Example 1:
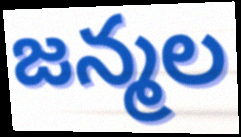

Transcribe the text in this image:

జన్మల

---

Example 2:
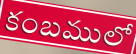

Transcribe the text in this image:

కంబములో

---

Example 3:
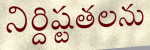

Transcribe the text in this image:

నిర్దిష్టతలను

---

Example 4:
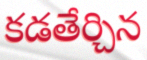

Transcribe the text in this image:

కడతేర్చిన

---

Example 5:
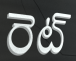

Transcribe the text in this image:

రెట్